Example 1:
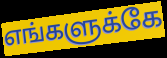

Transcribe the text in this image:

எங்களுக்கே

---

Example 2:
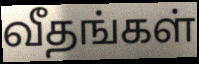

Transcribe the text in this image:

வீதங்கள்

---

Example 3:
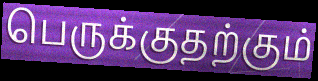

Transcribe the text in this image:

பெருக்குதற்கும்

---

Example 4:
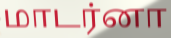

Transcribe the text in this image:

மாடர்னா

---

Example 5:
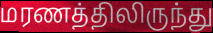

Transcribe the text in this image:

மரணத்திலிருந்து